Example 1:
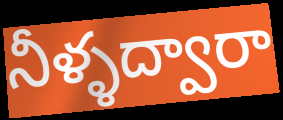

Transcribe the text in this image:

నీళ్ళద్వారా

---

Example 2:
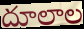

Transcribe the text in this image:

దూలాల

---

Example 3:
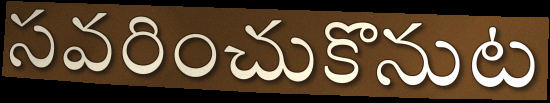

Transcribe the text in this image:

సవరించుకొనుట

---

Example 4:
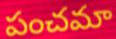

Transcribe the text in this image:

పంచమా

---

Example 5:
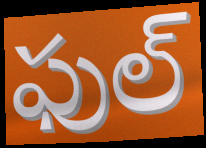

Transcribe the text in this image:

ఫుల్